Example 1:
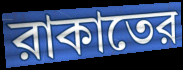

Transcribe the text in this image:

রাকাতের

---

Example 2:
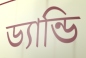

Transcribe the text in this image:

ড্যান্ডি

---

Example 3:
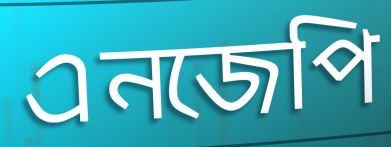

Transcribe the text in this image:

এনজেপি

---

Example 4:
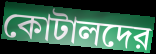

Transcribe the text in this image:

কোটালদের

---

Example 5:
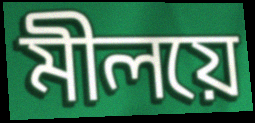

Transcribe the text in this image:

মীলয়ে